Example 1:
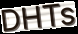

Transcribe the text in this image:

DHTs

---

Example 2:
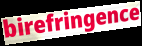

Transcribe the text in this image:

birefringence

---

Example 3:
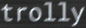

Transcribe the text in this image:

trolly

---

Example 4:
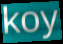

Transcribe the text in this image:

koy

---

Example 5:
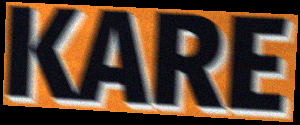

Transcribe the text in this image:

KARE